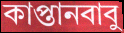
কাপ্তানবাবু